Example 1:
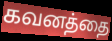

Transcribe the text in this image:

கவனத்தை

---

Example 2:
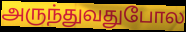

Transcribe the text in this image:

அருந்துவதுபோல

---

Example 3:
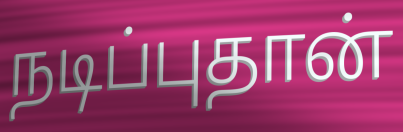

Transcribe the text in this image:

நடிப்புதான்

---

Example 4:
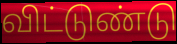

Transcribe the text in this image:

விட்டுண்டு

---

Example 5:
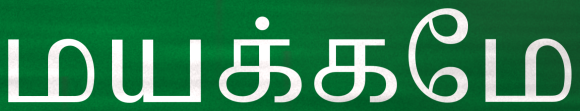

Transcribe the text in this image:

மயக்கமே